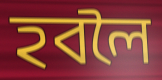
হবলৈ